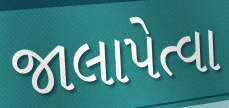
જાલાપેત્વા